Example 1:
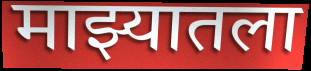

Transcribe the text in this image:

माझ्यातला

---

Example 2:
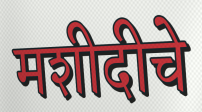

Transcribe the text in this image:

मशीदीचे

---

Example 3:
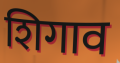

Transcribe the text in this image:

शिगाव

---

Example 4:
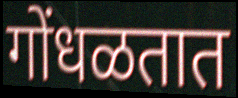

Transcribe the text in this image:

गोंधळतात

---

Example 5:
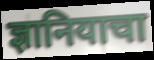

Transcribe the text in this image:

ज्ञानियाचा